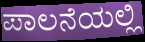
ಪಾಲನೆಯಲ್ಲಿ